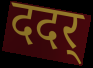
ददर्